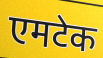
एमटेक